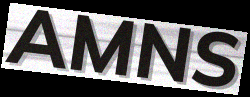
AMNS